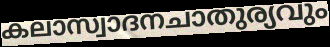
കലാസ്വാദനചാതുര്യവും